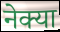
नेक्या